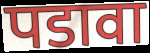
पडावा